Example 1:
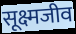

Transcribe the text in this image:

सूक्ष्मजीव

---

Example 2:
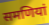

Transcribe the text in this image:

समणियां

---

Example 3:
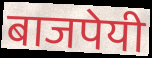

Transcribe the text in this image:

बाजपेयी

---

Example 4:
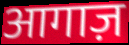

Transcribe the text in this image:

आगाज़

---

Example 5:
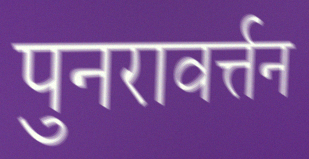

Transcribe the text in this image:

पुनरावर्त्तन